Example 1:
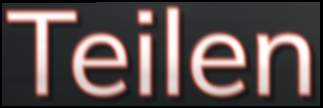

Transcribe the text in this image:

Teilen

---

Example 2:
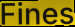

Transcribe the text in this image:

Fines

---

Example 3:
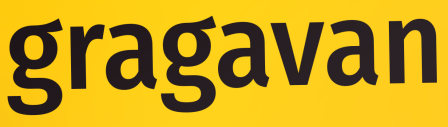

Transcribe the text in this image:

gragavan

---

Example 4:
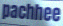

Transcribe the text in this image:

pachhee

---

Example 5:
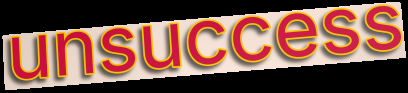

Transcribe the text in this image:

unsuccess